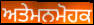
ਅਤੇਮਨਮੋਹਕ